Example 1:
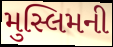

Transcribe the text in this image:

મુસ્લિમની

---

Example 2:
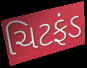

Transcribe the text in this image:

ચિટફંડ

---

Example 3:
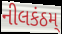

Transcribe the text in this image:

નીલકંઠમ્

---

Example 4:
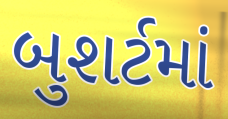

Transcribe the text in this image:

બુશર્ટમાં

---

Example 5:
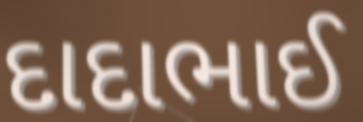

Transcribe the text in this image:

દાદાભાઈ